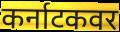
कर्नाटकवर